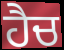
ਹੈਚ